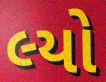
લ્યો